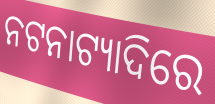
ନଟନାଟ୍ୟାଦିରେ